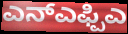
ಎನ್ಎಫ್ಪಿಎ